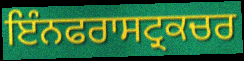
ਇੰਨਫਰਾਸਟ੍ਰਕਚਰ